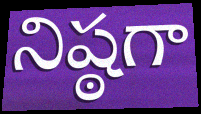
నిష్ఠగా